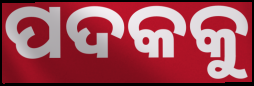
ପଦକକୁ